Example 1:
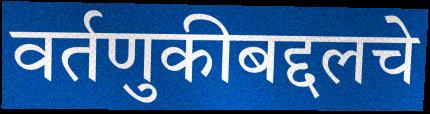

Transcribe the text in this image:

वर्तणुकीबद्दलचे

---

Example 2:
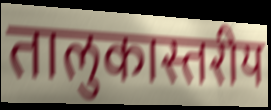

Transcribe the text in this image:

तालुकास्तरीय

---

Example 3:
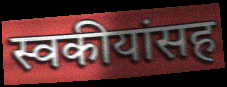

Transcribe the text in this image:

स्वकीयांसह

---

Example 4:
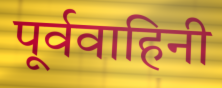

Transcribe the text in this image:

पूर्ववाहिनी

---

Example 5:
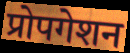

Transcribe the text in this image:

प्रोपगेशन